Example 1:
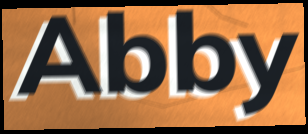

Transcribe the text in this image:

Abby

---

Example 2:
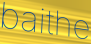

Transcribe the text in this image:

baithe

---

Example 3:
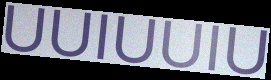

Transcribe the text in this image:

UUIUUIU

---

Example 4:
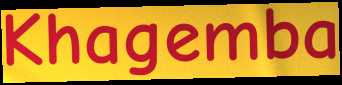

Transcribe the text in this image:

Khagemba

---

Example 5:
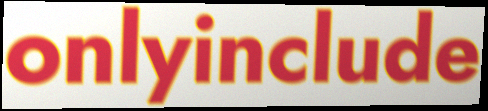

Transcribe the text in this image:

onlyinclude